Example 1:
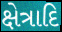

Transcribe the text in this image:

ક્ષેત્રાદિ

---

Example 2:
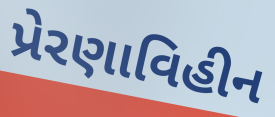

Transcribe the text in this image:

પ્રેરણાવિહીન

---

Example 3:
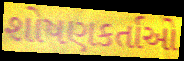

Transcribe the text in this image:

શોષણકર્તાઓ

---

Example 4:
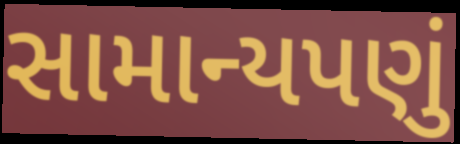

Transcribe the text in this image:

સામાન્યપણું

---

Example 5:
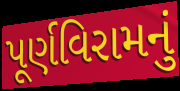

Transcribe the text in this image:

પૂર્ણવિરામનું